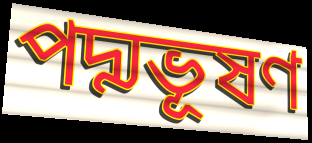
পদ্মভূষণ